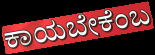
ಕಾಯಬೇಕೆಂಬ